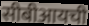
सीबीआयची